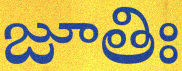
జూతిః